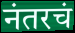
नंतरचं